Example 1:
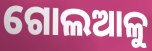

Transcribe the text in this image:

ଗୋଲଆଳୁ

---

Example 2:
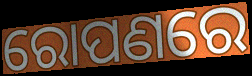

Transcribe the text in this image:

ରୋପଣରେ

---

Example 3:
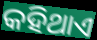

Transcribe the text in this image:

କହିଥାଏ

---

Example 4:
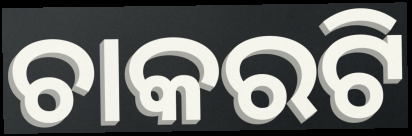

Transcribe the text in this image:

ଚାକରଟି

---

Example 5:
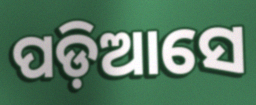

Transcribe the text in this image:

ପଡ଼ିଆସେ